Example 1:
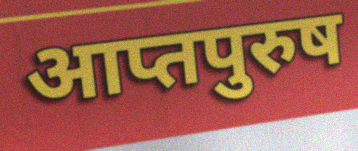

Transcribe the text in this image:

आप्तपुरुष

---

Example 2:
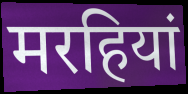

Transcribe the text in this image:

मरहियां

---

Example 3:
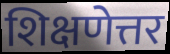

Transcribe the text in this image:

शिक्षणेत्तर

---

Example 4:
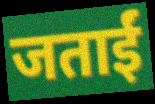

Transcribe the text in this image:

जताईं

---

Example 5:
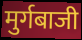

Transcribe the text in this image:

मुर्गबाजी